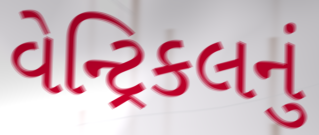
વેન્ટ્રિકલનું